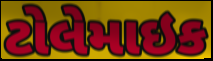
ટોલેમાઇક